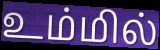
உம்மில்